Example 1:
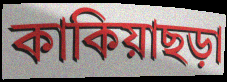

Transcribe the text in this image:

কাকিয়াছড়া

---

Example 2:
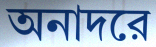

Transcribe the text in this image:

অনাদরে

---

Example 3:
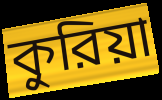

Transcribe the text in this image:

কুরিয়া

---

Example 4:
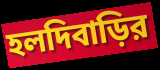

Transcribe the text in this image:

হলদিবাড়ির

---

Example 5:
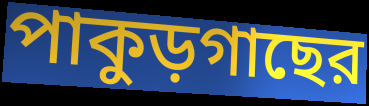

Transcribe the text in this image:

পাকুড়গাছের